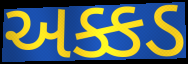
અક્કડ